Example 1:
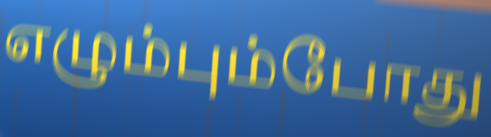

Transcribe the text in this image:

எழும்பும்போது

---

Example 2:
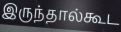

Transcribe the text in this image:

இருந்தால்கூட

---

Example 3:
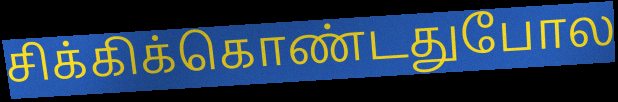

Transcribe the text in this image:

சிக்கிக்கொண்டதுபோல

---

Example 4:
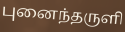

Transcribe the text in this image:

புனைந்தருளி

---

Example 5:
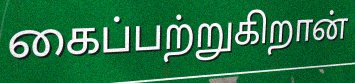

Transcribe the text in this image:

கைப்பற்றுகிறான்